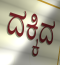
ದಕ್ಕಿದ